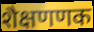
शैक्षणणक